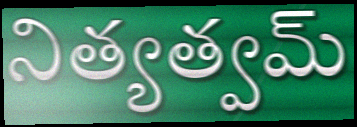
నిత్యత్వమ్